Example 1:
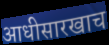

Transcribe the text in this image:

आधीसारखाच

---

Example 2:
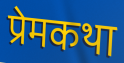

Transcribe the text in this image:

प्रेमकथा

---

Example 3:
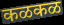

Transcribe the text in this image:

कळकळ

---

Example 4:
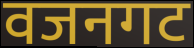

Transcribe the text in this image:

वजनगट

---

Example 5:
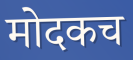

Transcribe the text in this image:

मोदकच